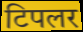
टिपलर